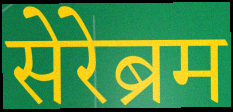
सेरेब्रम